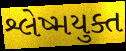
શ્લેષ્મયુક્ત